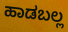
ಹಾಡಬಲ್ಲ